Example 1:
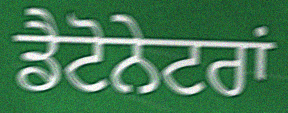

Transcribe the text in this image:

ਡੈਟੋਨੇਟਰਾਂ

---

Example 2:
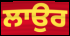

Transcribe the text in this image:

ਲਾਉਰ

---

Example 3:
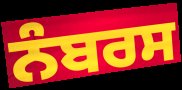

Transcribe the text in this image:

ਨੰਬਰਸ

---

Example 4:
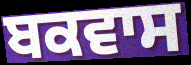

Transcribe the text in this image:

ਬਕਵਾਸ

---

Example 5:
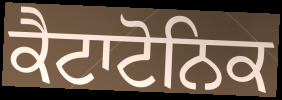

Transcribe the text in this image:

ਕੈਟਾਟੋਨਿਕ